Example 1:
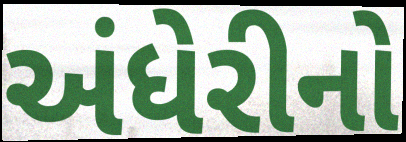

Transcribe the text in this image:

અંધેરીનો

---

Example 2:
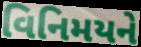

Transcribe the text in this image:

વિનિમયને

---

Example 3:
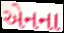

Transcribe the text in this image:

એનના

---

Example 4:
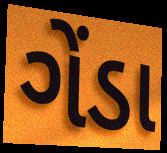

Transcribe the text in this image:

ગેંડા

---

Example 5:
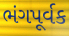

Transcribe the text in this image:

ભંગપૂર્વક